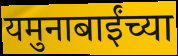
यमुनाबाईंच्या